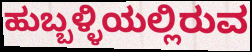
ಹುಬ್ಬಳ್ಳಿಯಲ್ಲಿರುವ